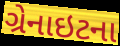
ગ્રેનાઇટના